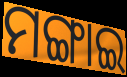
ମଙ୍ଗାଇ